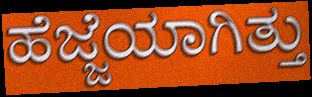
ಹೆಜ್ಜೆಯಾಗಿತ್ತು